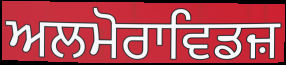
ਅਲਮੋਰਾਵਿਡਜ਼